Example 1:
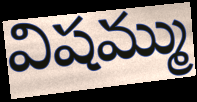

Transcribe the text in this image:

విషమ్ము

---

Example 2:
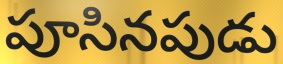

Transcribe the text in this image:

పూసినపుడు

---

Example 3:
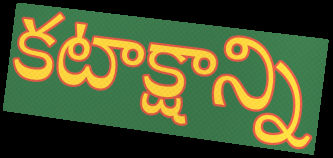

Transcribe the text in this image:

కటాక్షాన్ని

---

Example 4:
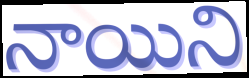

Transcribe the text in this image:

నాయిని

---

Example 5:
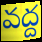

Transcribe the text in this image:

వద్ద